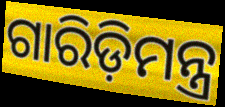
ଗାରିଡ଼ିମନ୍ତ୍ର